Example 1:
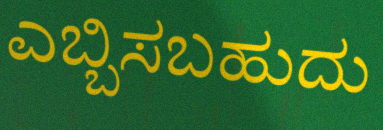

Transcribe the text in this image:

ಎಬ್ಬಿಸಬಹುದು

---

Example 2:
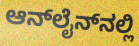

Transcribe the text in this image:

ಆನ್‌ಲೈನ್‌ನಲ್ಲಿ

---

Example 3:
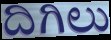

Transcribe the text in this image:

ದಿಗಿಲು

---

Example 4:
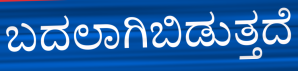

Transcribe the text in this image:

ಬದಲಾಗಿಬಿಡುತ್ತದೆ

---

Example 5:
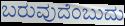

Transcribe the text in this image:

ಬರುವುದೆಂಬುದು